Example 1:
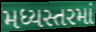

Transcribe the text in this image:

મધ્યસ્તરમાં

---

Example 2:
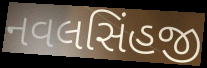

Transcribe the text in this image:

નવલસિંહજી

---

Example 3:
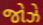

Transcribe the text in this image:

જોઝે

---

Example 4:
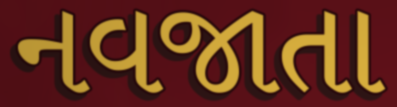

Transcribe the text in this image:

નવજાતા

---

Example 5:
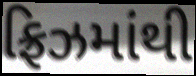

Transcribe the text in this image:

ફ્રિઝમાંથી